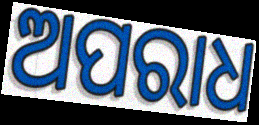
ଅପରାଧ